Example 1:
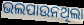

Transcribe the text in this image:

ଭଲପାଉନଥିଲା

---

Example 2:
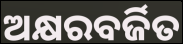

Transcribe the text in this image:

ଅକ୍ଷରବର୍ଜିତ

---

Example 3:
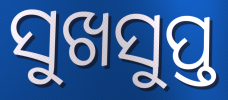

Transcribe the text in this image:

ସୁଖସୁପ୍ତ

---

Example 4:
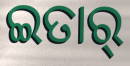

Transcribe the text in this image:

ଇତାର୍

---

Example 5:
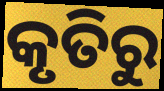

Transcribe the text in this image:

କୃତିରୁ